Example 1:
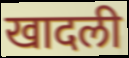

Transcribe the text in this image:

खादली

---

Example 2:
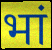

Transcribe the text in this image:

भां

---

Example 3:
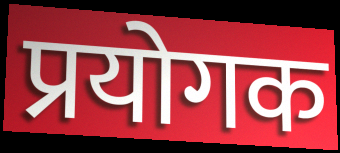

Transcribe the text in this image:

प्रयोगक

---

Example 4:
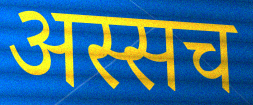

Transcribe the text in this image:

अस्सच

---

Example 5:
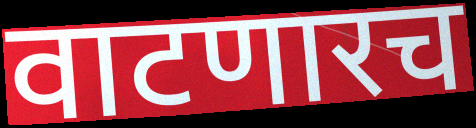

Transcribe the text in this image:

वाटणारच